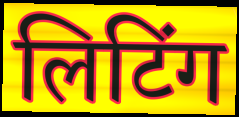
लिटिंग